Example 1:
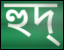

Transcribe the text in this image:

হুদ্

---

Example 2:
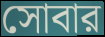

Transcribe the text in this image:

সোবার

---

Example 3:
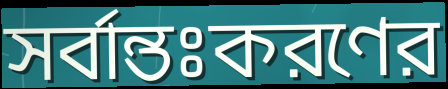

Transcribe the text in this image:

সর্বান্তঃকরণের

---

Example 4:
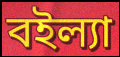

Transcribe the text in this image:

বইল্যা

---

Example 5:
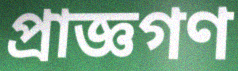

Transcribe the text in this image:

প্রাজ্ঞগণ